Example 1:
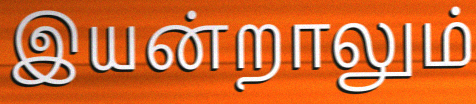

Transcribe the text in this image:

இயன்றாலும்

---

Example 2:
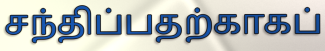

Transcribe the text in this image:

சந்திப்பதற்காகப்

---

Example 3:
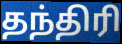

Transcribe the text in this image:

தந்திரி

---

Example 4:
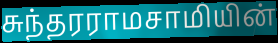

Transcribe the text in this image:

சுந்தரராமசாமியின்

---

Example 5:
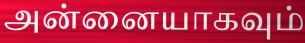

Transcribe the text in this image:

அன்னையாகவும்